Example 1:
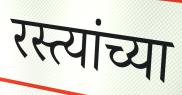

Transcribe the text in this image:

रस्त्यांच्या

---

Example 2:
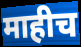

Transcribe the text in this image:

माहीच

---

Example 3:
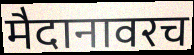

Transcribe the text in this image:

मैदानावरच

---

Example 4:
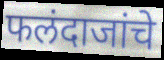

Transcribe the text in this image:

फलंदाजांचे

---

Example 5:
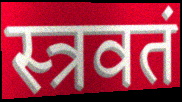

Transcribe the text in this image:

स्त्रवतं